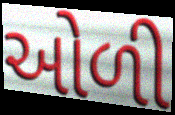
ઓળી